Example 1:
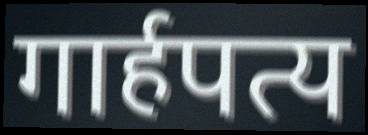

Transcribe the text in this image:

गार्हपत्य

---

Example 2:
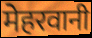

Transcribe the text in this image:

मेहरवानी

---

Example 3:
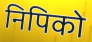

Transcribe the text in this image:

निपिको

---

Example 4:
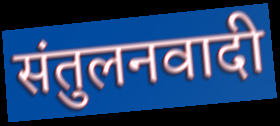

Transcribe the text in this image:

संतुलनवादी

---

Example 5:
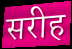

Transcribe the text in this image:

सरीह